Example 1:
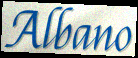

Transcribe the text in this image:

Albano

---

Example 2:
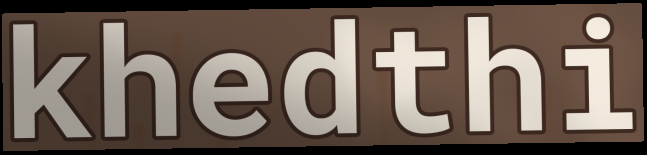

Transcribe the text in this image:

khedthi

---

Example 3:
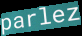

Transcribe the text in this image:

parlez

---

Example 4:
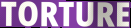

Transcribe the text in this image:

TORTURE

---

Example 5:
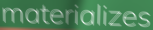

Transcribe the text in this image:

materializes